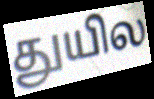
துயில